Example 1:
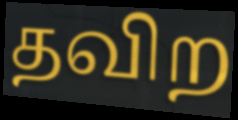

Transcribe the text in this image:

தவிற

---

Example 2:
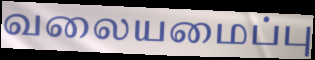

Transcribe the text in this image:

வலையமைப்பு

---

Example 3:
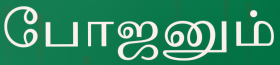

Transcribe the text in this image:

போஜனும்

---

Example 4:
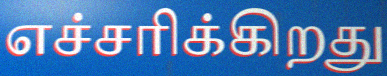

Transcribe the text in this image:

எச்சரிக்கிறது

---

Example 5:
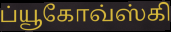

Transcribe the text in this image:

ப்யூகோவ்ஸ்கி